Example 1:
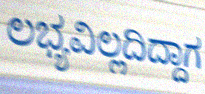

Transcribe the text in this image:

ಲಭ್ಯವಿಲ್ಲದಿದ್ದಾಗ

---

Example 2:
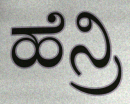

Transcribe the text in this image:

ಹೆನ್ರಿ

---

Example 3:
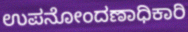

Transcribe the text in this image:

ಉಪನೋಂದಣಾಧಿಕಾರಿ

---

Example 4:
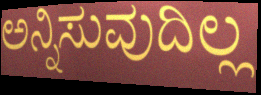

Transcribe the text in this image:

ಅನ್ನಿಸುವುದಿಲ್ಲ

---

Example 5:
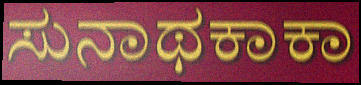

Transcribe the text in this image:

ಸುನಾಥಕಾಕಾ